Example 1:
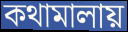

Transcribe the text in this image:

কথামালায়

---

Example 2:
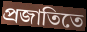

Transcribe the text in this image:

প্রজাতিতে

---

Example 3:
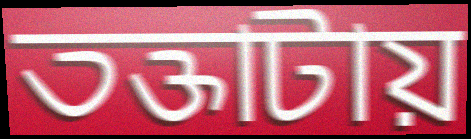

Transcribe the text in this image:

তক্তাটায়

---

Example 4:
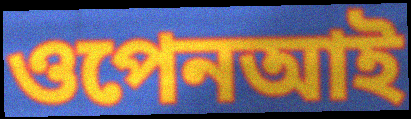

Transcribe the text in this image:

ওপেনআই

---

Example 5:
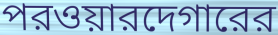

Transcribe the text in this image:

পরওয়ারদেগারের